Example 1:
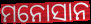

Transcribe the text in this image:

ମନୋସାନ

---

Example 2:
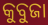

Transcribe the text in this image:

କୁବୁଜା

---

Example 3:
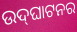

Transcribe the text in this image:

ଉଦ୍‌ଘାଟନର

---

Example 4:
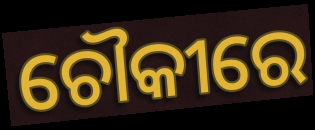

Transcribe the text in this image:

ଚୌକୀରେ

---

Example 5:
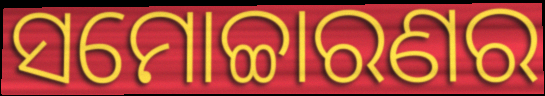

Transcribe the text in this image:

ସମୋଚ୍ଚାରଣର